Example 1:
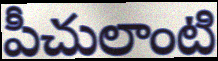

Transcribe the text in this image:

పీచులాంటి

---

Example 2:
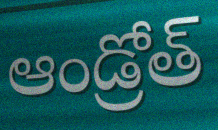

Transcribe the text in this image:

ఆండ్రోత్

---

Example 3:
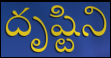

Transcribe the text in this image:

దృష్టిని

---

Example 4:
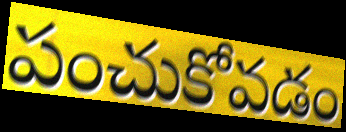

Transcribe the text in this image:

పంచుకోవడం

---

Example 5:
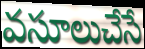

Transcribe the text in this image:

వసూలుచేసే